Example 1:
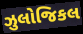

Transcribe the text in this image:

ઝુલોજિકલ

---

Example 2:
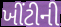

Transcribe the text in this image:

ખીંટીની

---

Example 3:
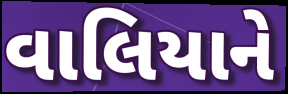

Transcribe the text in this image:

વાલિયાને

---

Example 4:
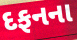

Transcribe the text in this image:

દફનના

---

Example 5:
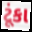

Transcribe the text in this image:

ટૂંકા